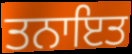
ਤਨਾਇਤ